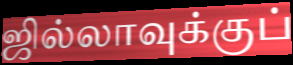
ஜில்லாவுக்குப்